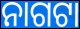
ନାଗଟା